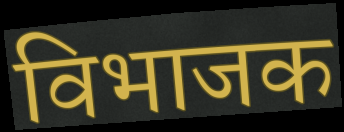
विभाजक